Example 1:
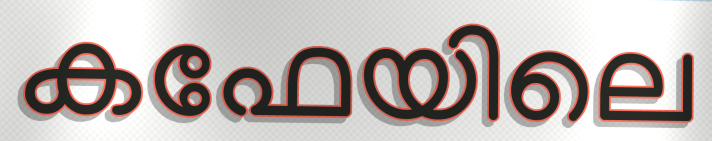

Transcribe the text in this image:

കഫേയിലെ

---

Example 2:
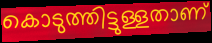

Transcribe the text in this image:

കൊടുത്തിട്ടുള്ളതാണ്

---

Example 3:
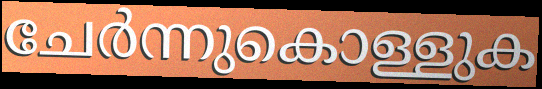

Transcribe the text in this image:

ചേർന്നുകൊള്ളുക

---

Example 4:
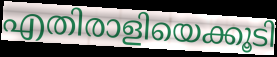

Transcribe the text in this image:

എതിരാളിയെക്കൂടി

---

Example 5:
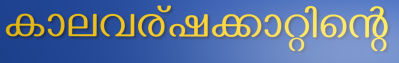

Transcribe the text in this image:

കാലവര്ഷക്കാറ്റിന്റെ